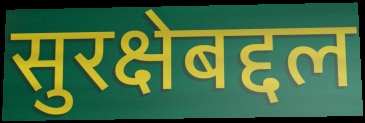
सुरक्षेबद्दल